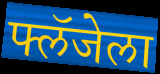
फ्लॅजेला